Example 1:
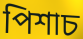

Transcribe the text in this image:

পিশাচ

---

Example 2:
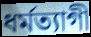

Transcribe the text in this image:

ধর্মত্যাগী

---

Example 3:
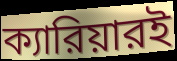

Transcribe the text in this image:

ক্যারিয়ারই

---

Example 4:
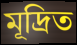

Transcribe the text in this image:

মূদ্রিত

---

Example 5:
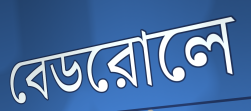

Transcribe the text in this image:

বেডরোলে